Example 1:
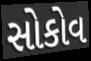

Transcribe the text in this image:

સોકોવ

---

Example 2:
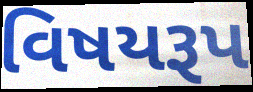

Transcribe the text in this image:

વિષયરૂપ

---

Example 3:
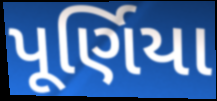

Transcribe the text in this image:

પૂર્ણિયા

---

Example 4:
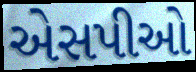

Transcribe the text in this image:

એસપીઓ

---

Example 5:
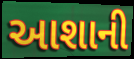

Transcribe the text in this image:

આશાની